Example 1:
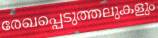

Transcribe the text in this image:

രേഖപ്പെടുത്തലുകളും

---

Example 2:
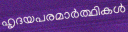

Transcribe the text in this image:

ഹൃദയപരമാർത്ഥികൾ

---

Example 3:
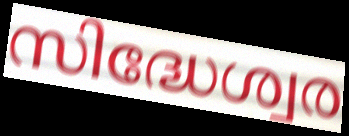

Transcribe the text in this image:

സിദ്ധേശ്വര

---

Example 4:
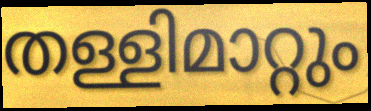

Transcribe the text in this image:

തള്ളിമാറ്റും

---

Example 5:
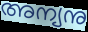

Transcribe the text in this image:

അന്യനു